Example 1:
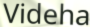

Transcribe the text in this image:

Videha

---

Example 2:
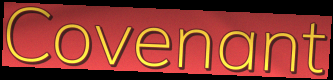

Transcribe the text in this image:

Covenant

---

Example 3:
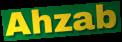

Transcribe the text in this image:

Ahzab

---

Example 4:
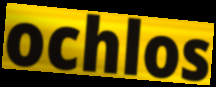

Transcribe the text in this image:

ochlos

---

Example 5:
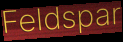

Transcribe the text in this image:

Feldspar